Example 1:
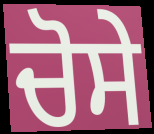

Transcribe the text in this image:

ਚੋਸੇ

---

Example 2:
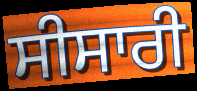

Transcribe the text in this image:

ਸੀਸਾਰੀ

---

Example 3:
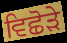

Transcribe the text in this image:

ਵਿਛੋੜੇ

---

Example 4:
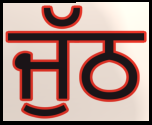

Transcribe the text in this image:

ਜੁੱਠ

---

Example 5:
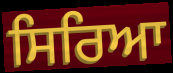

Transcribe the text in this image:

ਸਿਰਿਆ